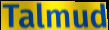
Talmud